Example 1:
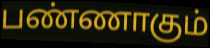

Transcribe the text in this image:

பண்ணாகும்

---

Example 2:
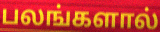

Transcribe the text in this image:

பலங்களால்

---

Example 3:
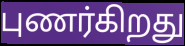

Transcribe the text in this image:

புணர்கிறது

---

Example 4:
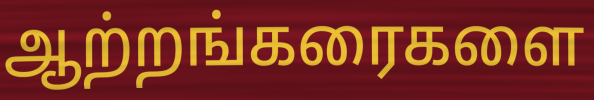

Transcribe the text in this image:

ஆற்றங்கரைகளை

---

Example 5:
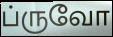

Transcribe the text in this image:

ப்ருவோ